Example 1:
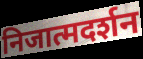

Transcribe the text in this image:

निजात्मदर्शन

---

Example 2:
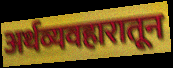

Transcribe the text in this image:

अर्थव्यवहारातून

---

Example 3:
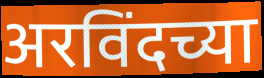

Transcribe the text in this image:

अरविंदच्या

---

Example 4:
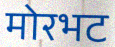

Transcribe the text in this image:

मोरभट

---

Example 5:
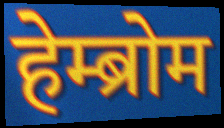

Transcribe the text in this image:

हेम्ब्रोम